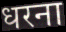
धरना